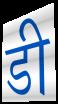
डी